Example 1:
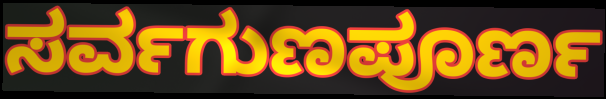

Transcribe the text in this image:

ಸರ್ವಗುಣಪೂರ್ಣ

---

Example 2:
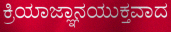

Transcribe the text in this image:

ಕ್ರಿಯಾಜ್ಞಾನಯುಕ್ತವಾದ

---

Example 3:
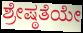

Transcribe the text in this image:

ಶ್ರೇಷ್ಠತೆಯೇ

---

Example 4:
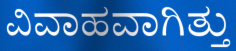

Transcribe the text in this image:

ವಿವಾಹವಾಗಿತ್ತು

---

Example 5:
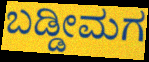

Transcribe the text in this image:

ಬಡ್ಡೀಮಗ